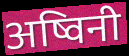
अष्विनी